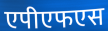
एपीएफएस